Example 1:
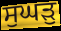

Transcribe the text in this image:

ਸੁਘੜੁ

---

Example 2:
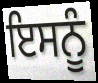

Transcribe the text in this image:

ਇਸਨੂੰ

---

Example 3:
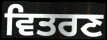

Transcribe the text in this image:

ਵਿਤਰਣ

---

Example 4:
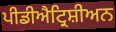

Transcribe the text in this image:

ਪੀਡੀਐਟ੍ਰਿਸ਼ੀਅਨ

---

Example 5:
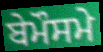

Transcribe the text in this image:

ਬੇਮੌਸਮੇ